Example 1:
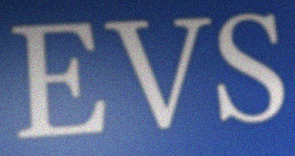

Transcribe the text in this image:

EVS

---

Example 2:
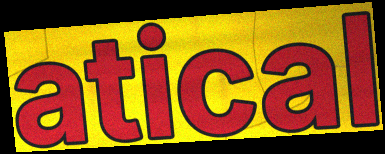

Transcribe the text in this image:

atical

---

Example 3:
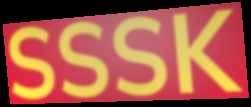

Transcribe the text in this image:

SSSK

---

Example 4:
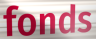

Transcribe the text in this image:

fonds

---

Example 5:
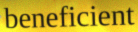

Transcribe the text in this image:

beneficient